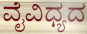
ವೈವಿಧ್ಯದ